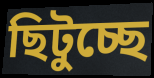
ছিটুচ্ছে